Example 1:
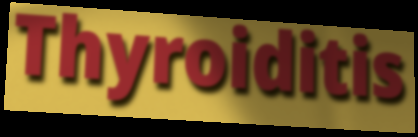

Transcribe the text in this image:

Thyroiditis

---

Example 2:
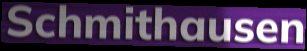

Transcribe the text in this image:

Schmithausen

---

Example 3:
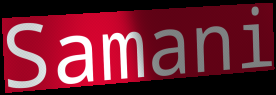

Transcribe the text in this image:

Samani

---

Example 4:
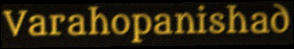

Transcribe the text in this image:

Varahopanishad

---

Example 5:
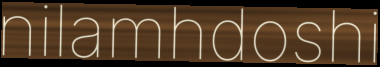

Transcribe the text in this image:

nilamhdoshi